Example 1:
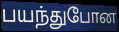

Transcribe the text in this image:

பயந்துபோன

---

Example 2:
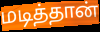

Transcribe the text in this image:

மடித்தான்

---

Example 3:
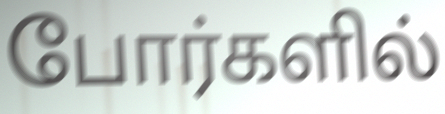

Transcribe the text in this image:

போர்களில்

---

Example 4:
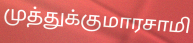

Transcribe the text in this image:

முத்துக்குமாரசாமி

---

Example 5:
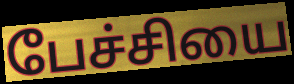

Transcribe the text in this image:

பேச்சியை